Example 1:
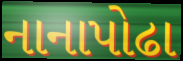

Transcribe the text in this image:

નાનાપોઢા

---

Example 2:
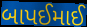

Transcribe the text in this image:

બાપઈમાઈ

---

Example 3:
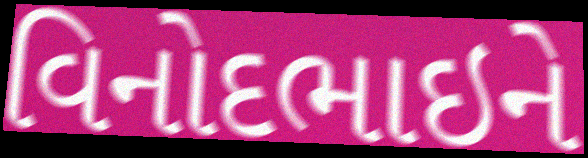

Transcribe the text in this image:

વિનોદભાઇને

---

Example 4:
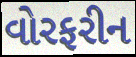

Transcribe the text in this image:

વોરફરીન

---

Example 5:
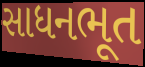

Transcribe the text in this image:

સાધનભૂત